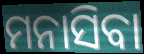
ମନାସିବା